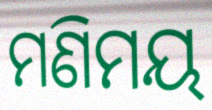
ମଣିମୟ